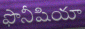
ఫొనీషియా